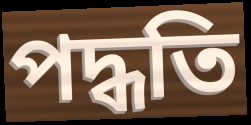
পদ্ধতি